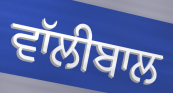
ਵਾੱਲੀਬਾਲ